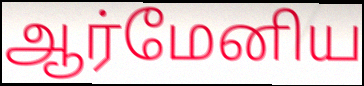
ஆர்மேனிய